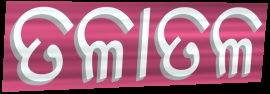
ତଳାତଳ